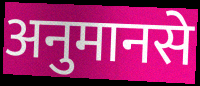
अनुमानसे